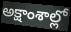
అక్షాంశాల్లో